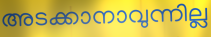
അടക്കാനാവുന്നില്ല